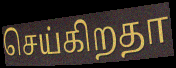
செய்கிறதா